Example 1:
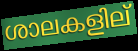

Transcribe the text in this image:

ശാലകളില്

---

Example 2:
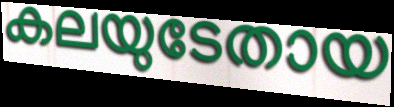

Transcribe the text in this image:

കലയുടേതായ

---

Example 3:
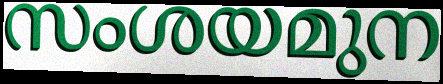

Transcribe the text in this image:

സംശയമുന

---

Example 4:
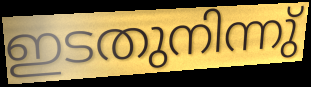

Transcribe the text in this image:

ഇടതുനിന്നു്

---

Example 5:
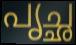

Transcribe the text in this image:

പൃച്ഛ